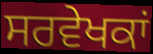
ਸਰਵੇਖਕਾਂ